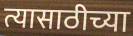
त्यासाठीच्या